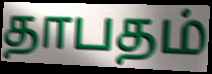
தாபதம்